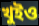
খুইও